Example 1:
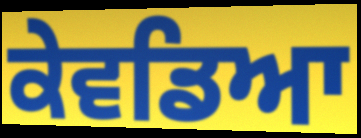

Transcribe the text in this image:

ਕੇਵਡਿਆ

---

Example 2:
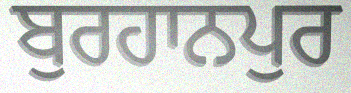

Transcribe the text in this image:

ਬੁਰਹਾਨਪੁਰ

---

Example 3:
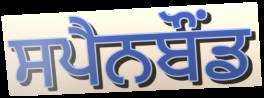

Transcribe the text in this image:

ਸਪੈਨਬੌਂਡ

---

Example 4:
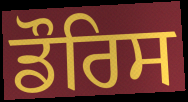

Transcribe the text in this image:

ਡੌਰਿਸ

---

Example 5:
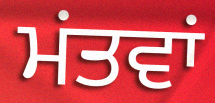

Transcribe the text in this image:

ਮਂਤਵਾਂ